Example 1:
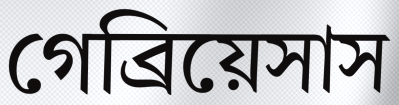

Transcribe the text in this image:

গেব্রিয়েসাস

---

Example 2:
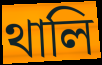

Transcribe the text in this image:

থালি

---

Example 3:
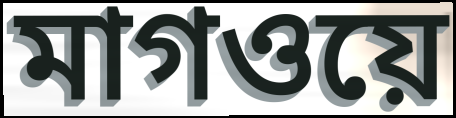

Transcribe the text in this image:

মাগওয়ে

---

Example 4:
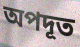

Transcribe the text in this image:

অপদূত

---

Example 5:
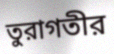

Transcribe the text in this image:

তুরাগতীর